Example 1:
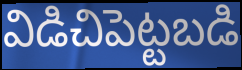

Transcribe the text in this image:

విడిచిపెట్టబడి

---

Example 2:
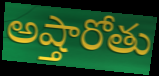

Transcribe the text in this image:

అష్తారోతు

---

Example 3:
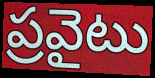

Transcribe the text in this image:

ప్రవైటు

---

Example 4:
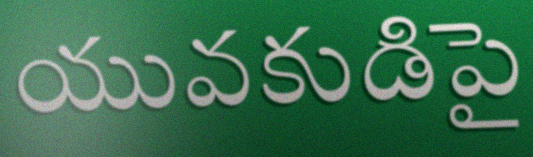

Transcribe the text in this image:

యువకుడిపై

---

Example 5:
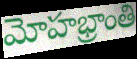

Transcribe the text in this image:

మోహభ్రాంతి